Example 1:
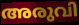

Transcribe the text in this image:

അരുവി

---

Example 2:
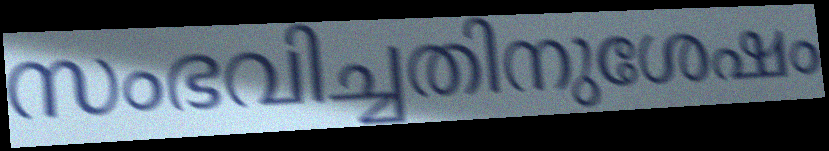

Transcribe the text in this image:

സംഭവിച്ചതിനുശേഷം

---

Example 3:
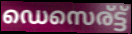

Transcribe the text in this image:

ഡെസെര്ട്ട്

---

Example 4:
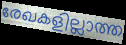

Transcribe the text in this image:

രേഖകളില്ലാത്ത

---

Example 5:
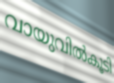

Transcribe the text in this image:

വായുവിൽകൂടി